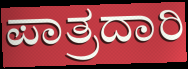
ಪಾತ್ರದಾರಿ